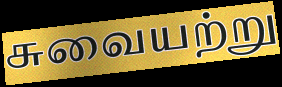
சுவையற்று